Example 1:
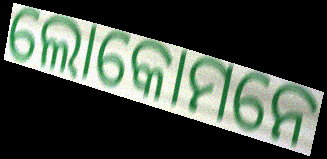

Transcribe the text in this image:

ଲୋକୋମନେ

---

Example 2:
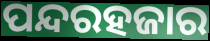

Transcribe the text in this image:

ପନ୍ଦରହଜାର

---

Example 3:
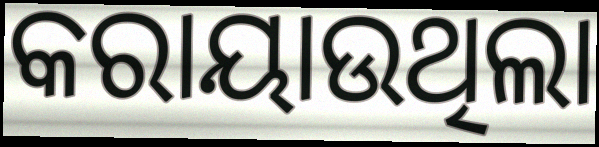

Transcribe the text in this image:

କରାୟାଉଥିଲା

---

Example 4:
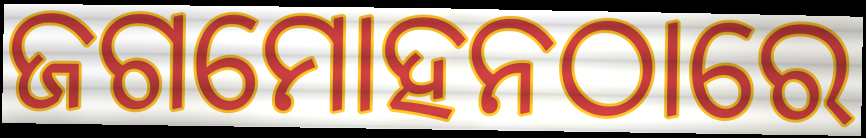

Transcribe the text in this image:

ଜଗମୋହନଠାରେ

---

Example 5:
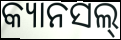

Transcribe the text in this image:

କ୍ୟାନସଲ୍